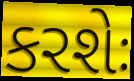
કરશેઃ